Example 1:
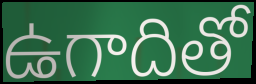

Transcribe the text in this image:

ఉగాదితో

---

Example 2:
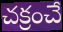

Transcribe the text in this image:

చక్రంచే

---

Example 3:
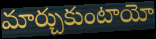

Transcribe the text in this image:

మార్చుకుంటాయో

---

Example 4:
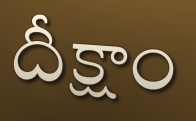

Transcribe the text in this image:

దీక్షాం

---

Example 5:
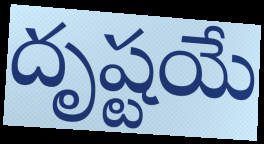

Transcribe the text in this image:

దృష్టయే